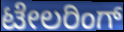
ಟೇಲರಿಂಗ್